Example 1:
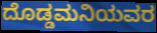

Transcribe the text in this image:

ದೊಡ್ಡಮನಿಯವರ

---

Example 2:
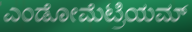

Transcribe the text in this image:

ಎಂಡೋಮೆಟ್ರಿಯಮ್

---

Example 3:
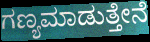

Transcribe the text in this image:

ಗಣ್ಯಮಾಡುತ್ತೇನೆ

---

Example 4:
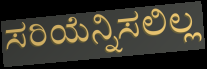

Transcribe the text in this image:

ಸರಿಯೆನ್ನಿಸಲಿಲ್ಲ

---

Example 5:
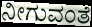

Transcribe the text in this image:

ನೀಗುವಂತೆ